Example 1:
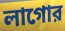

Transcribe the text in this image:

লাগোর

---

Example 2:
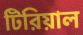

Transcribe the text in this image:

টিরিয়াল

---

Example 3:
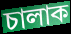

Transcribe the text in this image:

চালাক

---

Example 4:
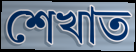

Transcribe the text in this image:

শেখাত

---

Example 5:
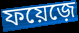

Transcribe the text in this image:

ফয়েজ়ে